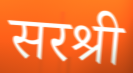
सरश्री